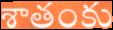
శాతంకు